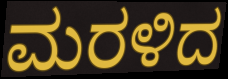
ಮರಳಿದ